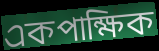
একপাক্ষিক